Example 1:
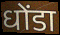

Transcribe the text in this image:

धोंडा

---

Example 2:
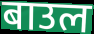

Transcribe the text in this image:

बाउल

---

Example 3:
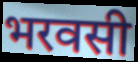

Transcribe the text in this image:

भरवसी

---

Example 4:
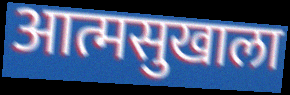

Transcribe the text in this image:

आत्मसुखाला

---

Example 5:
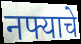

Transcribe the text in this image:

नफ्याचे